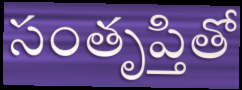
సంతృప్తితో